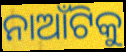
ନାଆଁଟିକୁ